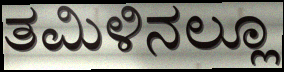
ತಮಿಳಿನಲ್ಲೂ